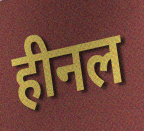
हीनल